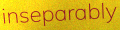
inseparably